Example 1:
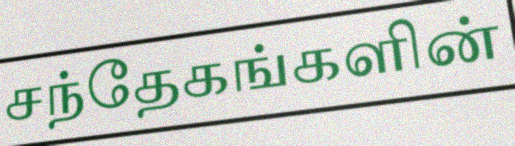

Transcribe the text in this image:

சந்தேகங்களின்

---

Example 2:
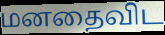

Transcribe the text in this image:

மனதைவிட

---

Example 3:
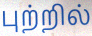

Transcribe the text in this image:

புற்றில்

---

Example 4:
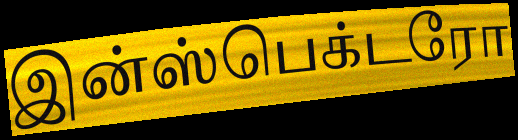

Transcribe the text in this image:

இன்ஸ்பெக்டரோ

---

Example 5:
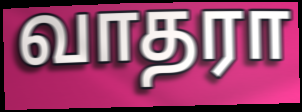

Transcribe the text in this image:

வாதரா